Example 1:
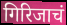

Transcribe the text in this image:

गिरिजाचं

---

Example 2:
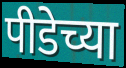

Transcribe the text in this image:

पीडेच्या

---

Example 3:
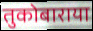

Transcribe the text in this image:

तुकोबाराया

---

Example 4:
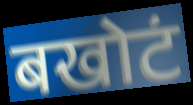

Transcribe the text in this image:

बखोटं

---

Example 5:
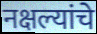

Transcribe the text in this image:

नक्षल्यांचे